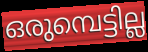
ഒരുമ്പെട്ടില്ല